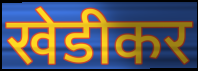
खेडीकर